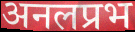
अनलप्रभ